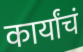
कार्यांचं